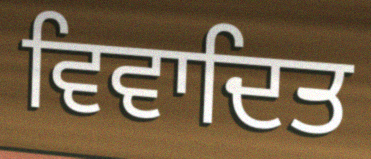
ਵਿਵਾਦਿਤ